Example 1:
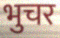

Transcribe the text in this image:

भुचर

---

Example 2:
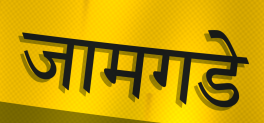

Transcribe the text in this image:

जामगडे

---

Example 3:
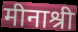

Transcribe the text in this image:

मीनाश्री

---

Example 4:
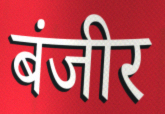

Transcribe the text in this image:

बंजीर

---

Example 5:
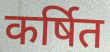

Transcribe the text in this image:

कर्षित